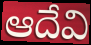
ఆదేవి